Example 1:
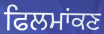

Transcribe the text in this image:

ਫਿਲਮਾਂਕਣ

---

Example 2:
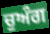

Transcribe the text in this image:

ਚੁਅੰਗ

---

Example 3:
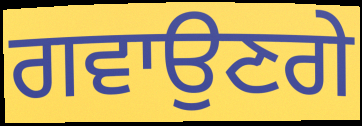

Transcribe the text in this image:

ਗਵਾਉਣਗੇ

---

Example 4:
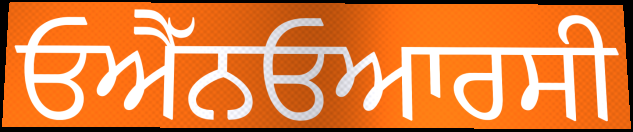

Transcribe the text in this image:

ਓਐੱਨਓਆਰਸੀ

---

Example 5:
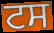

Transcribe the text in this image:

ਟਸ